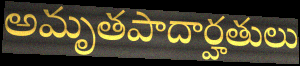
అమృతపాదార్హతులు